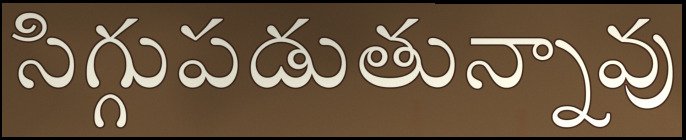
సిగ్గుపడుతున్నావు